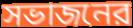
সভাজনের